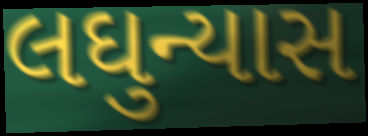
લઘુન્યાસ